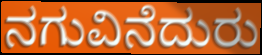
ನಗುವಿನೆದುರು